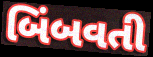
બિંબવતી